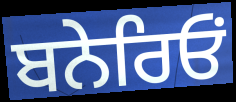
ਬਨੇਰਿਓਂ